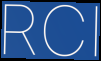
RCl